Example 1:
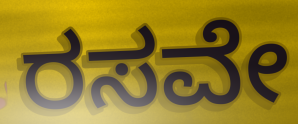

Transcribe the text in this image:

ರಸವೇ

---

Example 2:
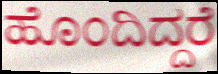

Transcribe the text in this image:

ಹೊಂದಿದ್ದರೆ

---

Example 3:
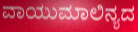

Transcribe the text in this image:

ವಾಯುಮಾಲಿನ್ಯದ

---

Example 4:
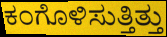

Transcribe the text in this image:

ಕಂಗೊಳಿಸುತ್ತಿತ್ತು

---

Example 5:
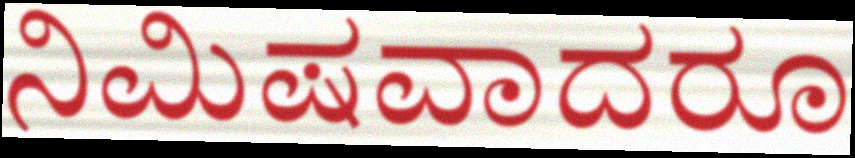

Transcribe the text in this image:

ನಿಮಿಷವಾದರೂ